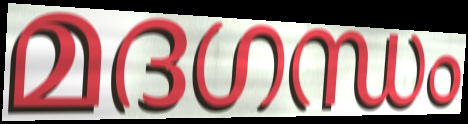
മദഗന്ധം